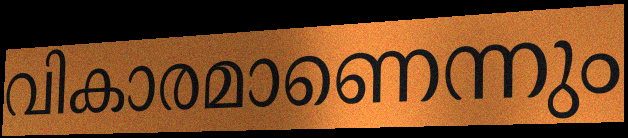
വികാരമാണെന്നും